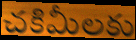
చకిమీలకు